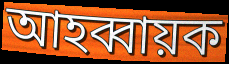
আহব্বায়ক